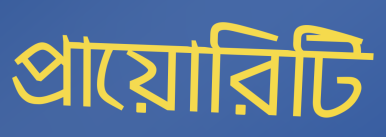
প্রায়োরিটি